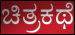
ಚಿತ್ರಕಥೆ